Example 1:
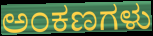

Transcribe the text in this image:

ಅಂಕಣಗಳು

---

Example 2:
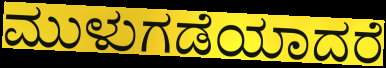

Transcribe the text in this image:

ಮುಳುಗಡೆಯಾದರೆ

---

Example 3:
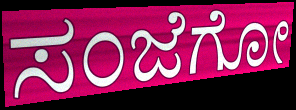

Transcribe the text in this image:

ಸಂಜೆಗೋ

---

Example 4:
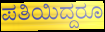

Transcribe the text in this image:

ಪತಿಯಿದ್ದರೂ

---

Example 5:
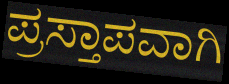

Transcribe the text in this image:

ಪ್ರಸ್ತಾಪವಾಗಿ